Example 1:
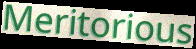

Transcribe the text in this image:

Meritorious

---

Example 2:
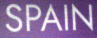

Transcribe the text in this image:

SPAIN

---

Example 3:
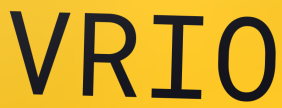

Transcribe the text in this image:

VRIO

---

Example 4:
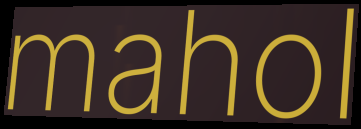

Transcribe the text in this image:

mahol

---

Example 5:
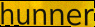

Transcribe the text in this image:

hunner